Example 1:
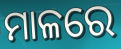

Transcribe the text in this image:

ମାଳରେ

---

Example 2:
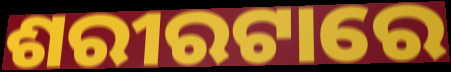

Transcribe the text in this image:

ଶରୀରଟାରେ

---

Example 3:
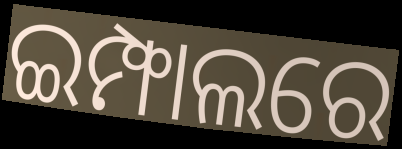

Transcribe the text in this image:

ଇମ୍ଫାଲରେ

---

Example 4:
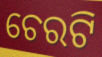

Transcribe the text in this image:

ଚେରଟି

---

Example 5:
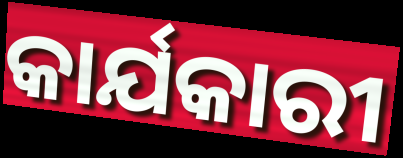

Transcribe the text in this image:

କାର୍ଯକାରୀ